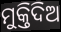
ମୁକ୍ତିଦିଅ